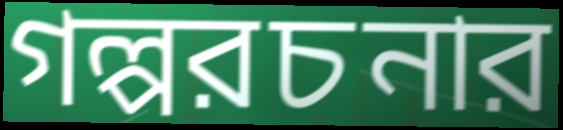
গল্পরচনার